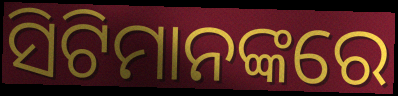
ସିଟିମାନଙ୍କରେ